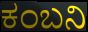
ಕಂಬನಿ